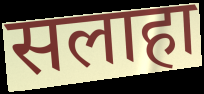
सलाहा